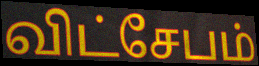
விட்சேபம்